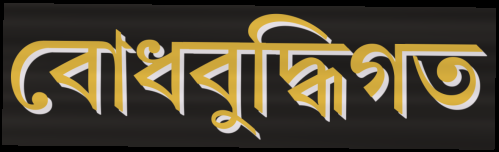
বোধবুদ্ধিগত